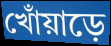
খোঁয়াড়ে